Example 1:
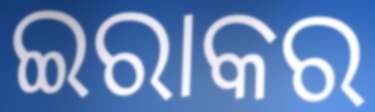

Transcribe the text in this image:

ଇରାକର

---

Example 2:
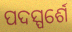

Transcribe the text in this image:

ପଦସ୍ପର୍ଶେ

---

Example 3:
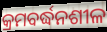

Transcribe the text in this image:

କ୍ରମବର୍ଦ୍ଧନଶୀଳ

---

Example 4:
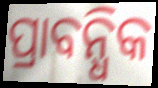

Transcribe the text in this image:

ପ୍ରାବନ୍ଧିକ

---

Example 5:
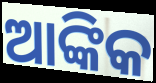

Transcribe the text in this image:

ଆଙ୍କିକ